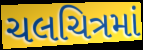
ચલચિત્રમાં